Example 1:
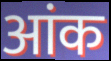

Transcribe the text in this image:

आंक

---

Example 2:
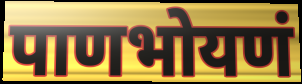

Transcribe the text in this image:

पाणभोयणं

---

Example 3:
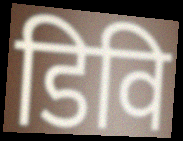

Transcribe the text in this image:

डिवि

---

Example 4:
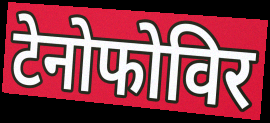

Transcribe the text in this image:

टेनोफोविर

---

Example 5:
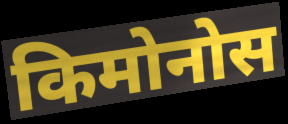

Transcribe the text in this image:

किमोनोस